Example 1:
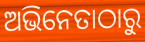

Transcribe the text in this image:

ଅଭିନେତାଠାରୁ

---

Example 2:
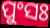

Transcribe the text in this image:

ପୁଂସଃ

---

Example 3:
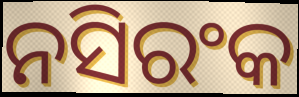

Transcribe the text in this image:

ନସିରଂକ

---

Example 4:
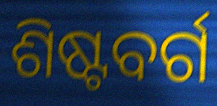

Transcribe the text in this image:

ଶିଷ୍ଟବର୍ଗ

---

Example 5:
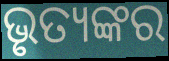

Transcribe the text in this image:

ଭୃତ୍ୟଙ୍କର